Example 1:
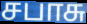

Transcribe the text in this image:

சபாசு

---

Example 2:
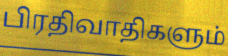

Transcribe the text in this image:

பிரதிவாதிகளும்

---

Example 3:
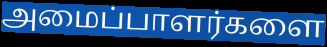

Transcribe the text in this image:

அமைப்பாளர்களை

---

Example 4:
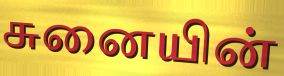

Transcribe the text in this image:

சுனையின்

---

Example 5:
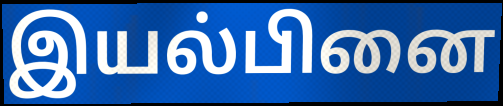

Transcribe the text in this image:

இயல்பினை